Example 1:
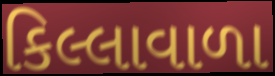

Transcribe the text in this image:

કિલ્લાવાળા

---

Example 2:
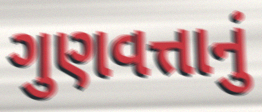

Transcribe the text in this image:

ગુણવત્તાનું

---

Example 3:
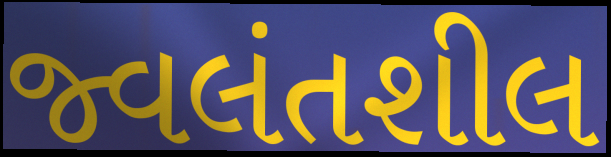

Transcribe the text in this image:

જ્વલંતશીલ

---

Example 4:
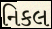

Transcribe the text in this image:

નિકલ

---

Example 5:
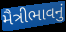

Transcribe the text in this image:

મૈત્રીભાવનું